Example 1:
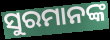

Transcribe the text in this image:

ସୁରମାନଙ୍କ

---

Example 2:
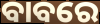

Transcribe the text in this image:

ବାବରେ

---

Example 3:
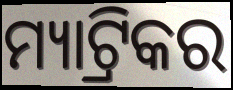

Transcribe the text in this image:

ମ୍ୟାଟ୍ରିକର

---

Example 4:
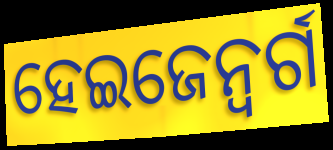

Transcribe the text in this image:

ହେଇଜେନ୍ବର୍ଗ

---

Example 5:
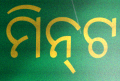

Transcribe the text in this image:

ମିନ୍‌ଟ